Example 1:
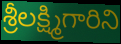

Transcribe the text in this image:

శ్రీలక్ష్మిగారిని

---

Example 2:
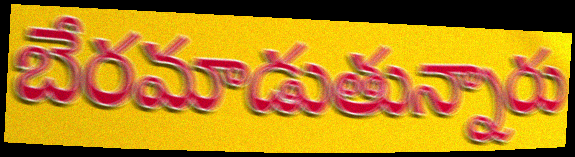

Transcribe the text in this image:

బేరమాడుతున్నారు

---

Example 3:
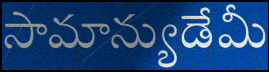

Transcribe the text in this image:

సామాన్యుడేమీ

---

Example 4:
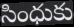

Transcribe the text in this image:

సింధుకు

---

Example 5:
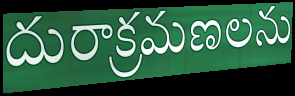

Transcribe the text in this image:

దురాక్రమణలను